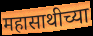
महासाथीच्या